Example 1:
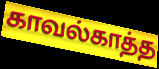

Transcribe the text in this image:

காவல்காத்த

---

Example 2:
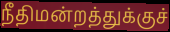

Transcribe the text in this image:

நீதிமன்றத்துக்குச்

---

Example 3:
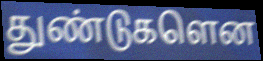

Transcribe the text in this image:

துண்டுகளென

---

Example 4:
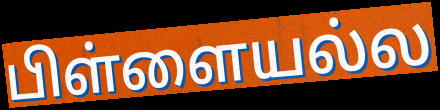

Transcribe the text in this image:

பிள்ளையல்ல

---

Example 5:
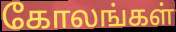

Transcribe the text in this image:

கோலங்கள்